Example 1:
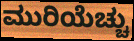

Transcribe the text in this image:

ಮುರಿಯೆಚ್ಚು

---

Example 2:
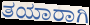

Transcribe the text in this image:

ತಯಾರಾಗಿ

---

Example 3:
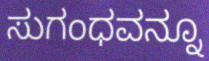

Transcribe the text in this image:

ಸುಗಂಧವನ್ನೂ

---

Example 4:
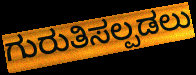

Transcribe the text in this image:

ಗುರುತಿಸಲ್ಪಡಲು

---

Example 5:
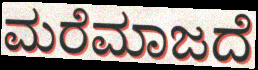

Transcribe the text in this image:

ಮರೆಮಾಜದೆ